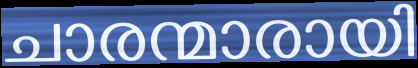
ചാരന്മാരായി